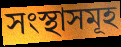
সংস্থাসমূহ